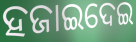
ହଜାଇଦେଇ